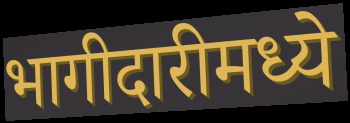
भागीदारीमध्ये